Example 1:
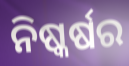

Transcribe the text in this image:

ନିଷ୍କର୍ଷର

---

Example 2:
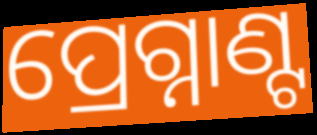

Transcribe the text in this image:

ପ୍ରେଗ୍ନାଣ୍ଟ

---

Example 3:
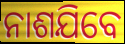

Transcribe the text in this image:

ନାଶଯିବେ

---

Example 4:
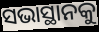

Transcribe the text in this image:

ସଭାସ୍ଥାନକୁ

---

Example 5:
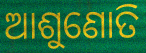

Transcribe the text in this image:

ଆଶୁଣୋତି